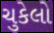
ચુકેલો